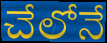
చేలోనే